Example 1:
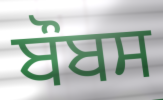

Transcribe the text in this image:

ਬੌਬਸ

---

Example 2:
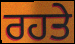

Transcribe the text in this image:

ਰਹਤੇ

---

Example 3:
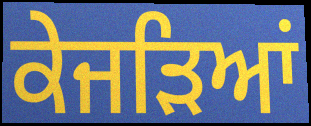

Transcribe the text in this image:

ਕੇਜੜਿਆਂ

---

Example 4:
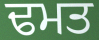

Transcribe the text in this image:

ਢਮਤ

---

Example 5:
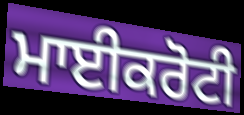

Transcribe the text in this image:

ਮਾਈਕਰੋਟੀ